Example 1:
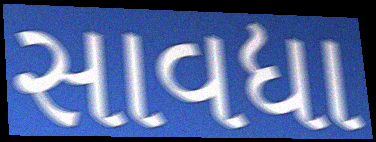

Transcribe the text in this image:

સાવદ્યા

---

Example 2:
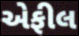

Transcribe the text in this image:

એફીલ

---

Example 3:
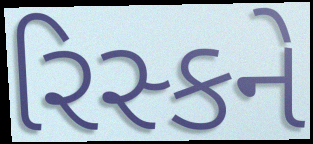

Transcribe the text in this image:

રિસ્કને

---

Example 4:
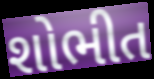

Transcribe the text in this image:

શોભીત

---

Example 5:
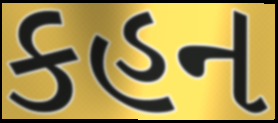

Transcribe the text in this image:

કહન